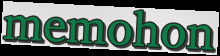
memohon